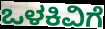
ಒಳಕಿವಿಗೆ